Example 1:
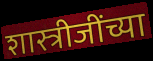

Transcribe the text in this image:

शास्त्रीजींच्या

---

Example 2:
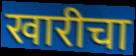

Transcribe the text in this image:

खारीचा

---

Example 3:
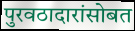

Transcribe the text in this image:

पुरवठादारांसोबत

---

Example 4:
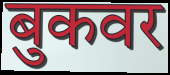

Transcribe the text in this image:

बुकवर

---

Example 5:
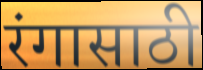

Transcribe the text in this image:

रंगासाठी